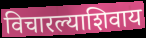
विचारल्याशिवाय